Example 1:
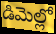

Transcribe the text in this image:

డిమెల్లో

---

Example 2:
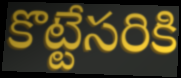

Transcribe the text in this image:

కొట్టేసరికి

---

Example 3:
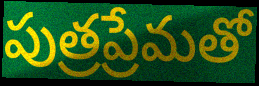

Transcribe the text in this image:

పుత్రప్రేమతో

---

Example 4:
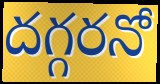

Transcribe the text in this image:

దగ్గరనో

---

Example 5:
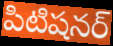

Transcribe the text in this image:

పిటిషనర్